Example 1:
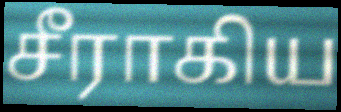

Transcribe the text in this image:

சீராகிய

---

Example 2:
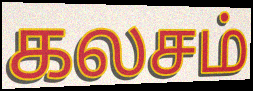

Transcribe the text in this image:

கலசம்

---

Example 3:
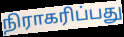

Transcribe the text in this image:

நிராகரிப்பது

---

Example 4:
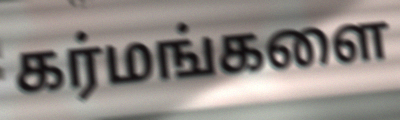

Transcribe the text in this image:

கர்மங்களை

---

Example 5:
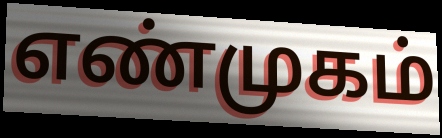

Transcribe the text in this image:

எண்முகம்